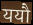
ययौ